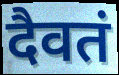
दैवतं